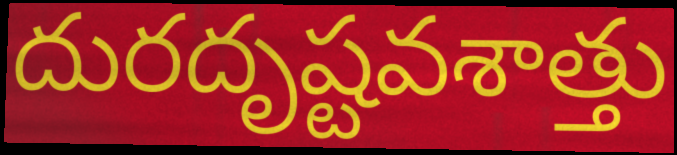
దురదృష్టవశాత్తు